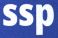
ssp